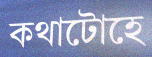
কথাটোহে